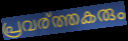
പ്രവര്ത്തകരും